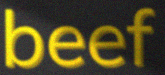
beef